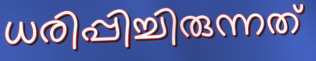
ധരിപ്പിച്ചിരുന്നത്